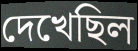
দেখেছিল